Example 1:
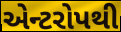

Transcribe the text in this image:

એન્ટરોપથી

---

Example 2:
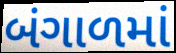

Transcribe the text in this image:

બંગાળમાં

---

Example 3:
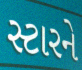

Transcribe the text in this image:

સ્ટારને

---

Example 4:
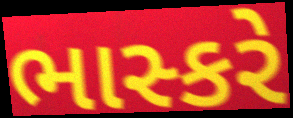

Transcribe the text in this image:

ભાસ્કરે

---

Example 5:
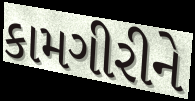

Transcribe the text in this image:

કામગીરીને